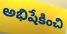
అభిషేకించి